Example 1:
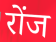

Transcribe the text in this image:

रोंज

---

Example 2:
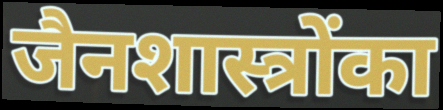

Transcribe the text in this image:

जैनशास्त्रोंका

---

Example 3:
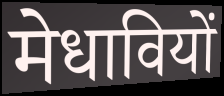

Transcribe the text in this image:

मेधावियों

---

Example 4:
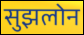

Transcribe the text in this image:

सुझलोन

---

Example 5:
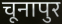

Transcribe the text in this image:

चूनापुर